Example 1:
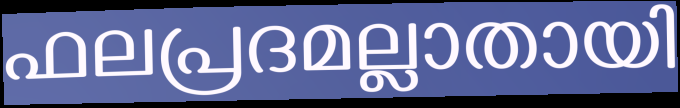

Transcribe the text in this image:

ഫലപ്രദമല്ലാതായി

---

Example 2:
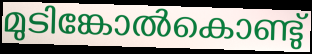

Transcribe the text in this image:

മുടിങ്കോൽകൊണ്ടു്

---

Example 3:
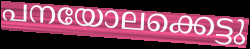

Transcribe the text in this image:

പനയോലക്കെട്ടു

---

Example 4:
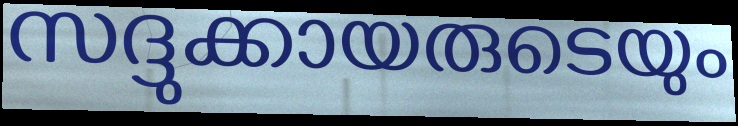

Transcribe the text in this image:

സദ്ദുക്കായരുടെയും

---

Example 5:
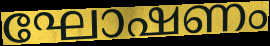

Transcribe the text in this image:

ഘോഷണം